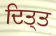
ਦਿਤ੍ਤ